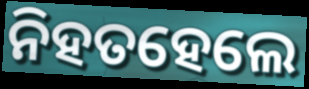
ନିହତହେଲେ